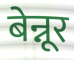
बेन्नूर